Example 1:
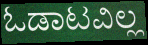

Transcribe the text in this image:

ಓಡಾಟವಿಲ್ಲ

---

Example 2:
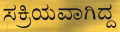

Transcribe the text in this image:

ಸಕ್ರಿಯವಾಗಿದ್ದ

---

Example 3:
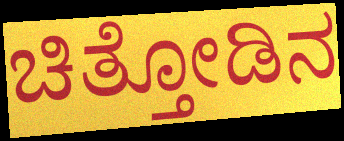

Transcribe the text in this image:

ಚಿತ್ತೋಡಿನ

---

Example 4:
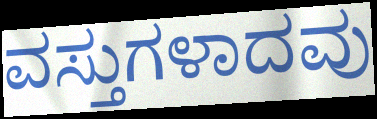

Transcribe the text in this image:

ವಸ್ತುಗಳಾದವು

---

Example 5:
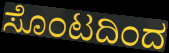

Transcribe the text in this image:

ಸೊಂಟದಿಂದ